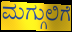
ಮಗ್ಗುಲಿಗೆ